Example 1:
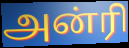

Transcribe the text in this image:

அன்ரி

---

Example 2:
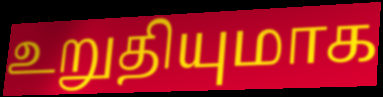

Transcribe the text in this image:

உறுதியுமாக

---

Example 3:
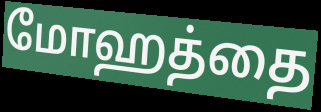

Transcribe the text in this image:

மோஹத்தை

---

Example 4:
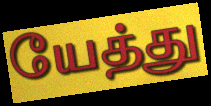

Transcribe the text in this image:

யேத்து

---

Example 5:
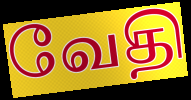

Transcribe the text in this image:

வேதி